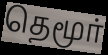
தெமூர்